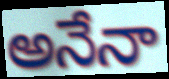
అనేనా